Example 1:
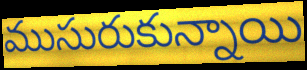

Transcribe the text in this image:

ముసురుకున్నాయి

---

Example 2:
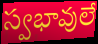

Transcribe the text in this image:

స్వభావులే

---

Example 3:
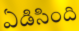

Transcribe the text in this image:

ఏడిసింది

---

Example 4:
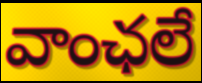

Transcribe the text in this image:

వాంఛలే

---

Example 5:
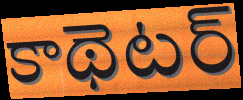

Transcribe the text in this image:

కాథెటర్